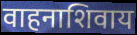
वाहनाशिवाय